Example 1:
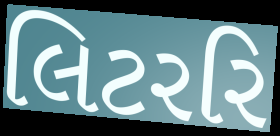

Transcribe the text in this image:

લિટરરિ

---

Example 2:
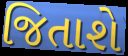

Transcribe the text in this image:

જિતાશે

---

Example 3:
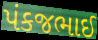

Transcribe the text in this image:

પંકજભાઈ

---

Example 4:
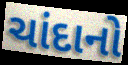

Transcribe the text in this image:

ચાંદાનો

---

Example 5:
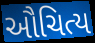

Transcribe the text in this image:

ઔચિત્ય